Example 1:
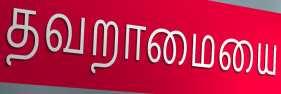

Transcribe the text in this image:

தவறாமையை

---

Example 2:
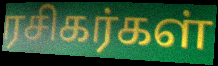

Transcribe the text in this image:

ரசிகர்கள்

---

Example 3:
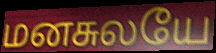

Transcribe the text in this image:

மனசுலயே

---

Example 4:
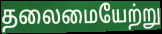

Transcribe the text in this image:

தலைமையேற்று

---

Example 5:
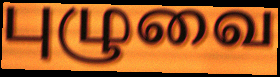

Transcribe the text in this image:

புழுவை